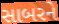
સાબરને